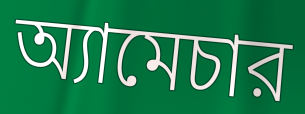
অ্যামেচার